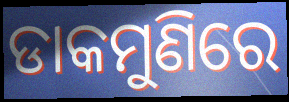
ଡାକମୁଣିରେ